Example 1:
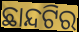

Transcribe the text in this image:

ଛାନ୍ଦଟିର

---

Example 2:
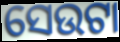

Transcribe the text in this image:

ସେଉଟା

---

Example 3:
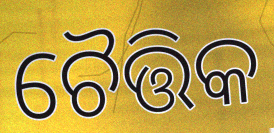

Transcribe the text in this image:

ଚୈତ୍ତିକ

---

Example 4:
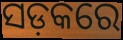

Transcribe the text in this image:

ସଡ଼କରେ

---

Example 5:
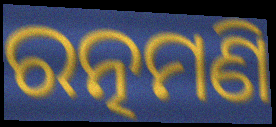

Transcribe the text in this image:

ରତ୍ନମଣି